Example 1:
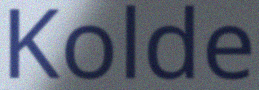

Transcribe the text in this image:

Kolde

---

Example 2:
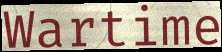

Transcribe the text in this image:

Wartime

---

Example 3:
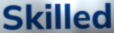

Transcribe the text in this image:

Skilled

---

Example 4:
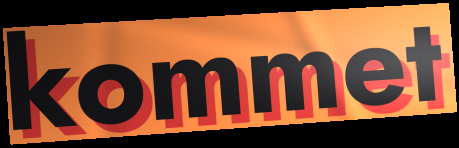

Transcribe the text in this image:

kommet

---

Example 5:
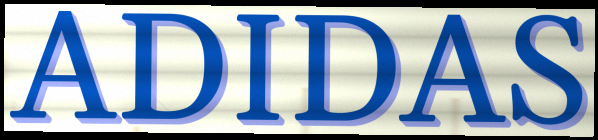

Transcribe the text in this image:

ADIDAS